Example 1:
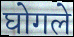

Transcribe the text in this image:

घोगले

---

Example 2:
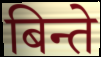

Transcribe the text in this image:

बिन्ते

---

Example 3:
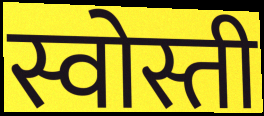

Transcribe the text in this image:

स्वोस्ती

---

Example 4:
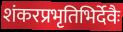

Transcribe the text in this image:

शंकरप्रभृतिभिर्देवैः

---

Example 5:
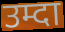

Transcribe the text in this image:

उम्‍दा